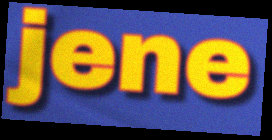
jene